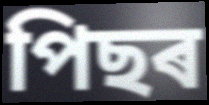
পিছৰ